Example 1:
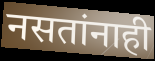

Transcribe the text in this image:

नसतांनाही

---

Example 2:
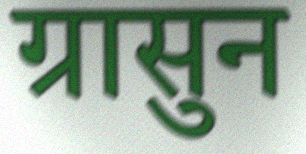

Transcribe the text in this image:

ग्रासुन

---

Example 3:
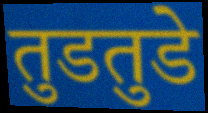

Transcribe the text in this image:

तुडतुडे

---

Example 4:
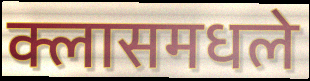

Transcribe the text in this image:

क्लासमधले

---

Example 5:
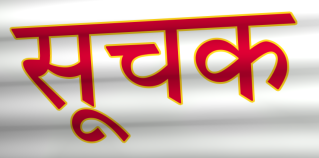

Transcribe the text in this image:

सूचक